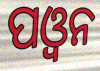
ପଓ୍ବନ